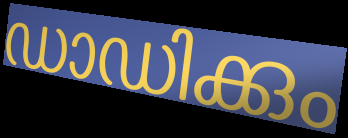
ഡാഡിക്കും